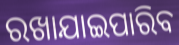
ରଖାଯାଇପାରିବ